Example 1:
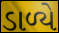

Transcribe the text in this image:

ડાળ્યે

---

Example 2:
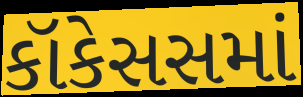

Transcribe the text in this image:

કૉકેસસમાં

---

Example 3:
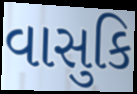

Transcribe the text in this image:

વાસુકિ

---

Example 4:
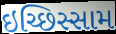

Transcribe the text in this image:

ઇચ્છિસ્સામ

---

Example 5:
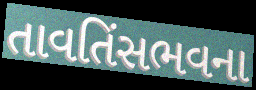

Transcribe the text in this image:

તાવતિંસભવના